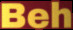
Beh